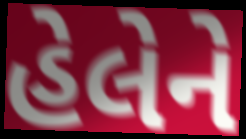
હેલેને